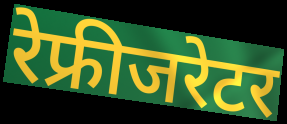
रेफ्रीजरेटर